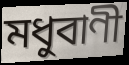
মধুবাণী